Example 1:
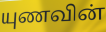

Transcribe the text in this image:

யுணவின்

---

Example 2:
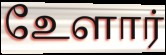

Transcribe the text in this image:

உேளார்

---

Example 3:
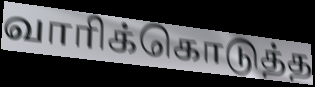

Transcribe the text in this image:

வாரிக்கொடுத்த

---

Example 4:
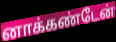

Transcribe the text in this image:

னாக்கண்டேன்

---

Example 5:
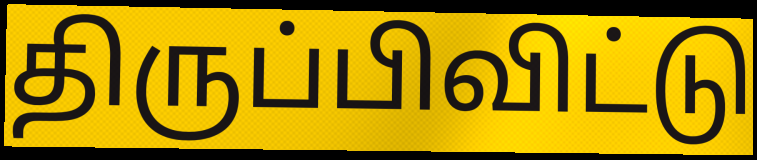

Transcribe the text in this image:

திருப்பிவிட்டு